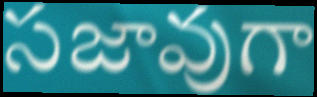
సజావుగా